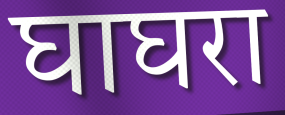
घाघरा